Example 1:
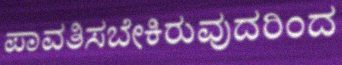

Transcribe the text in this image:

ಪಾವತಿಸಬೇಕಿರುವುದರಿಂದ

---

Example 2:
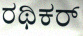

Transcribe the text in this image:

ರಥಿಕರ್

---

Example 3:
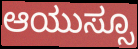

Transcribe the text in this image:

ಆಯುಸ್ಸೂ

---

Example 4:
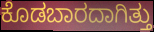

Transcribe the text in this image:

ಕೊಡಬಾರದಾಗಿತ್ತು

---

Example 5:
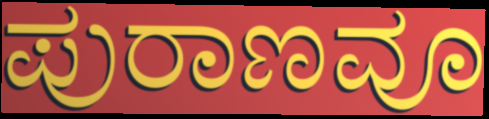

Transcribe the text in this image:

ಪುರಾಣವೂ